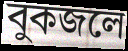
বুকজলে